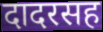
दादरसह